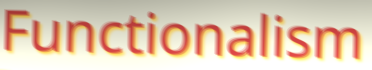
Functionalism